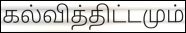
கல்வித்திட்டமும்